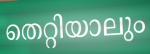
തെറ്റിയാലും